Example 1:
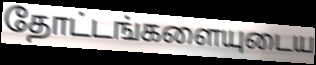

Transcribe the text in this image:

தோட்டங்களையுடைய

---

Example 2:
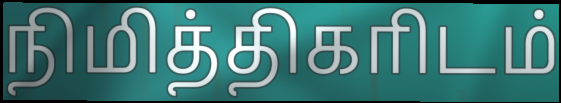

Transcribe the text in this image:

நிமித்திகரிடம்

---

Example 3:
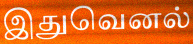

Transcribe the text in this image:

இதுவெனல்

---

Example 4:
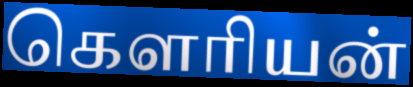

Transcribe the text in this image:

கௌரியன்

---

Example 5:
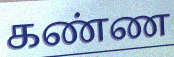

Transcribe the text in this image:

கண்ண